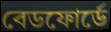
বেডফোর্ডে